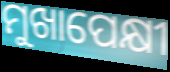
ମୁଖାପେକ୍ଷୀ